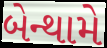
બેન્થામે